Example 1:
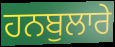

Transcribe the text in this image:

ਹਨਬੁਲਾਰੇ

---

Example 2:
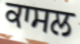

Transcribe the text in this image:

ਕਾਸਲ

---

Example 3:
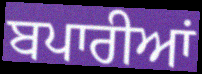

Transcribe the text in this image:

ਬਪਾਰੀਆਂ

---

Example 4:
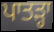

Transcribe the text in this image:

ਪਾਤੜ੍ਹਾ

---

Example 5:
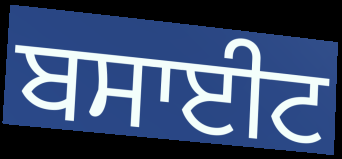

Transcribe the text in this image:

ਬਸਾਈਟ